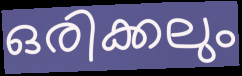
ഒരിക്കലും